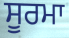
ਸੂਰਮਾ